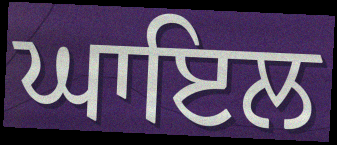
ਘਾਇਲ